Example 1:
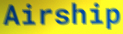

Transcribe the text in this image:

Airship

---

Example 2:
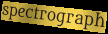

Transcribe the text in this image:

spectrograph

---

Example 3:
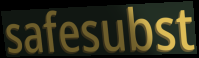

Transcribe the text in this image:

safesubst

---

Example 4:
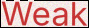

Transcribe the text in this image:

Weak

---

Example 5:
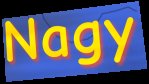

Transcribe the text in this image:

Nagy